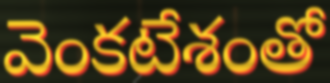
వెంకటేశంతో